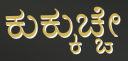
ಕುಕ್ಕುಚ್ಚೇ